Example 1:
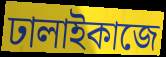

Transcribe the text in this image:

ঢালাইকাজে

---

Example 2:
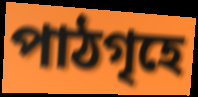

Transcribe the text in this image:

পাঠগৃহে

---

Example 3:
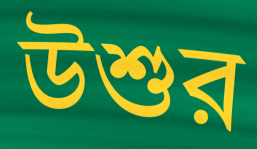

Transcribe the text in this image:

উশুর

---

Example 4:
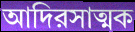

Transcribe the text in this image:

আদিরসাত্মক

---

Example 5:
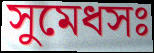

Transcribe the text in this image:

সুমেধসঃ